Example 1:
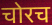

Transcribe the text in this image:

चोरच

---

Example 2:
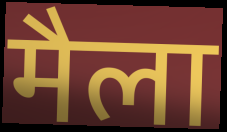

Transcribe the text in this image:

मैला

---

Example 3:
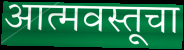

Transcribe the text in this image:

आत्मवस्तूचा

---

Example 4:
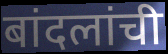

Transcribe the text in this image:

बांदलांची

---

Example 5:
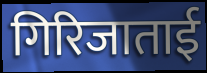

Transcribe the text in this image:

गिरिजाताई